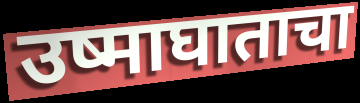
उष्माघाताचा